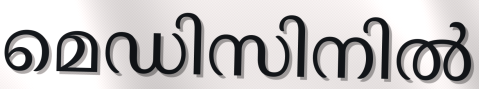
മെഡിസിനിൽ